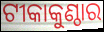
ଟୀକାକୁଣ୍ଠାର